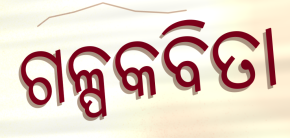
ଗଳ୍ପକବିତା